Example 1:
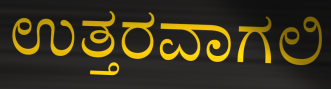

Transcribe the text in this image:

ಉತ್ತರವಾಗಲಿ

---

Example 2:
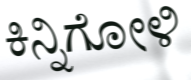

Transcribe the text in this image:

ಕಿನ್ನಿಗೋಳಿ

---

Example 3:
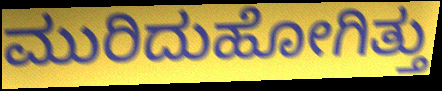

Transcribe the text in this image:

ಮುರಿದುಹೋಗಿತ್ತು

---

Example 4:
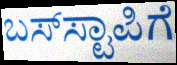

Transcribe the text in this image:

ಬಸ್‌ಸ್ಟಾಪಿಗೆ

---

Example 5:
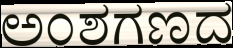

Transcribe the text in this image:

ಅಂಶಗಣದ